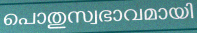
പൊതുസ്വഭാവമായി